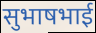
सुभाषभाई